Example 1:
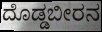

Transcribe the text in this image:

ದೊಡ್ಡಬೀರನ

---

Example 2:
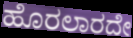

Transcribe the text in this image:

ಹೊರಲಾರದೇ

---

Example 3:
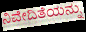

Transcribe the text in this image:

ನಿವೇದಿತೆಯನ್ನು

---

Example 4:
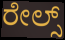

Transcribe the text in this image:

ರೇಲ್ಸ್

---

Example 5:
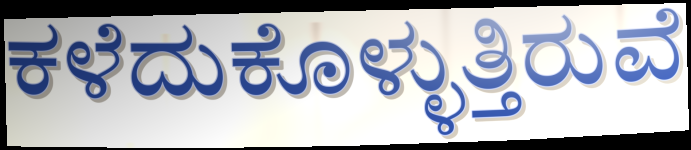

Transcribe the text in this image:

ಕಳೆದುಕೊಳ್ಳುತ್ತಿರುವೆ